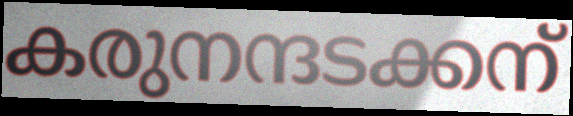
കരുനന്ദടക്കന്